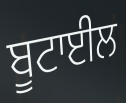
ਬੂਟਾਈਲ